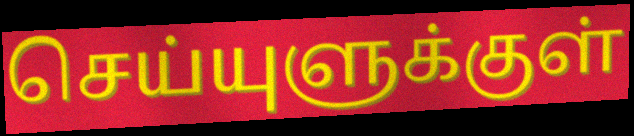
செய்யுளுக்குள்